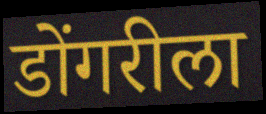
डोंगरीला